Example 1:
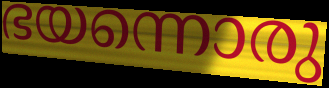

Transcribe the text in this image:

ഭയന്നൊരു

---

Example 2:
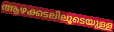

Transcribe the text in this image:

ആഴക്കടലിലൂടെയുള്ള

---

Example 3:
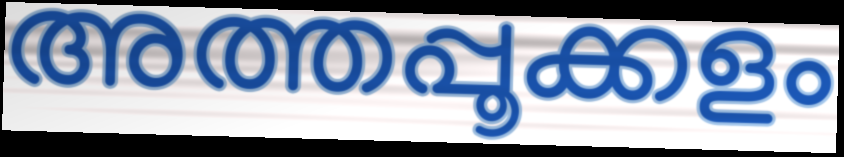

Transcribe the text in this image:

അത്തപ്പൂക്കളം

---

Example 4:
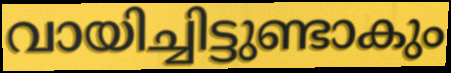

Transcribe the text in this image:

വായിച്ചിട്ടുണ്ടാകും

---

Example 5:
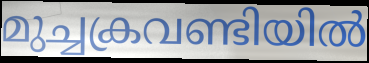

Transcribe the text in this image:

മുച്ചക്രവണ്ടിയിൽ